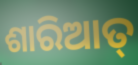
ଶାରିଆତ୍